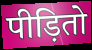
पीड़ितो